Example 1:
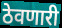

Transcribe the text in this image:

ठेवणारी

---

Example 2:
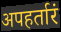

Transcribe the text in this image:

अपहर्तारं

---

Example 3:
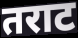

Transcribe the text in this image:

तराट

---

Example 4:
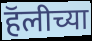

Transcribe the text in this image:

हॅलीच्या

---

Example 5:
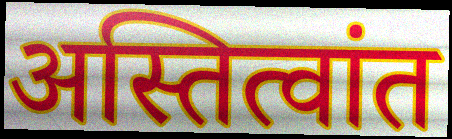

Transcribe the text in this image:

अस्तित्वांत